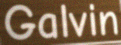
Galvin